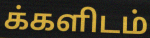
க்களிடம்